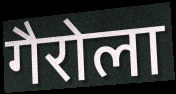
गैरोला